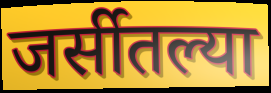
जर्सीतल्या